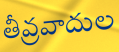
తీవ్రవాదుల